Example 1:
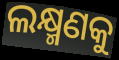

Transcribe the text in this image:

ଲକ୍ଷ୍ମଣକୁ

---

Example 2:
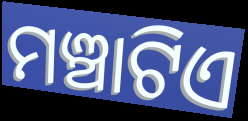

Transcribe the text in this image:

ମଞ୍ଚାଟିଏ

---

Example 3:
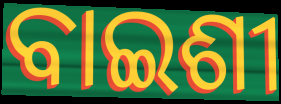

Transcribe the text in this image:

ବାଇଶୀ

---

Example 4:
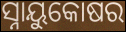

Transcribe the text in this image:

ସ୍ନାୟୁକୋଷର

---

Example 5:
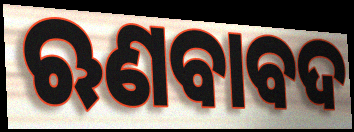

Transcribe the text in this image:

ଋଣବାବଦ